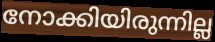
നോക്കിയിരുന്നില്ല